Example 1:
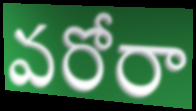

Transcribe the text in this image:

వరోరా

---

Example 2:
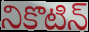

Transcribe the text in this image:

నికొటిన్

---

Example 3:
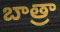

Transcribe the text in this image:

బాత్రా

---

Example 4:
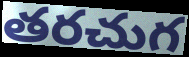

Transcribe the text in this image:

తరచుగ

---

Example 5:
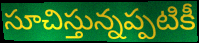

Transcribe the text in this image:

సూచిస్తున్నప్పటికీ